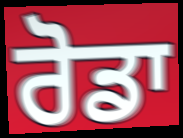
ਰੋਡਾ